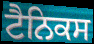
ਟੈਨਿਕਸ